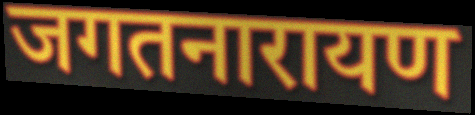
जगतनारायण